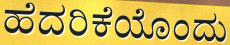
ಹೆದರಿಕೆಯೊಂದು